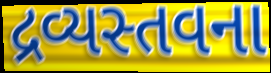
દ્રવ્યસ્તવના